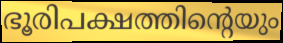
ഭൂരിപക്ഷത്തിന്റെയും